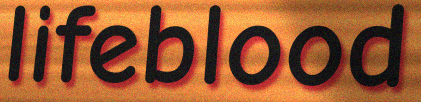
lifeblood